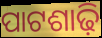
ପାଟଶାଢ଼ି